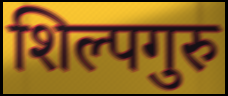
शिल्पगुरु